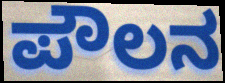
ಪೌಲನ